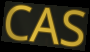
CAS